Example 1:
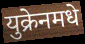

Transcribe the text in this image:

युक्रेनमधे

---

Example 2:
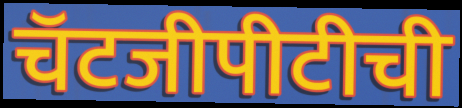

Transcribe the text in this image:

चॅटजीपीटीची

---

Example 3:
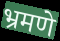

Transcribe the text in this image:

भ्रमणे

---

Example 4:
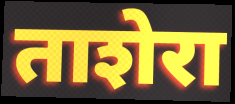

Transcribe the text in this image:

ताशेरा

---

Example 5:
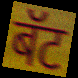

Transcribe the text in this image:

बॅट